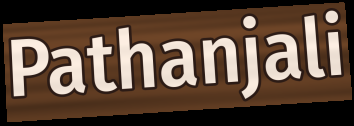
Pathanjali